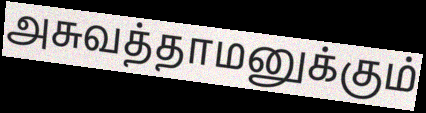
அசுவத்தாமனுக்கும்